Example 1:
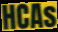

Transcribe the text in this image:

HCAs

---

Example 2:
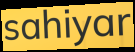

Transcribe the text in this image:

sahiyar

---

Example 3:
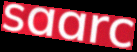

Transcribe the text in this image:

saarc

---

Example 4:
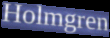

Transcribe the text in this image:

Holmgren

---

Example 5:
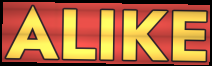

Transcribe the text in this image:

ALIKE